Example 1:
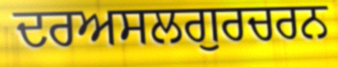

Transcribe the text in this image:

ਦਰਅਸਲਗੁਰਚਰਨ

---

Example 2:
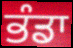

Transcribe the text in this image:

ਭੰਡਾ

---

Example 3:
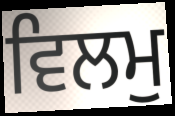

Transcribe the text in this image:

ਵਿਲਮੁ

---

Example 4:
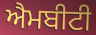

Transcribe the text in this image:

ਐਮਬੀਟੀ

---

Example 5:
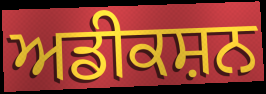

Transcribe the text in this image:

ਅਡੀਕਸ਼ਨ